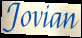
Jovian